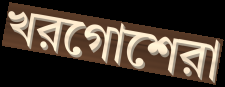
খরগোশেরা